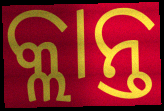
କ୍ଲାନ୍ତ